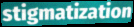
stigmatization